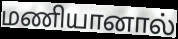
மணியானால்